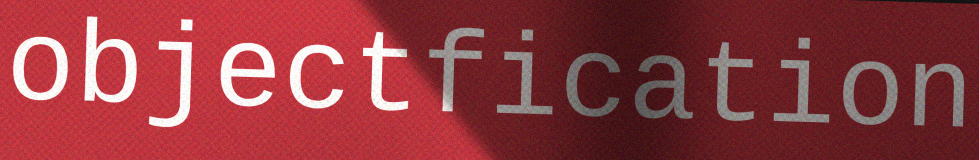
objectfication